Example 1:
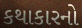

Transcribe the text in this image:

કથાકારનો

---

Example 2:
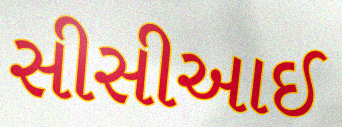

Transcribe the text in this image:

સીસીઆઈ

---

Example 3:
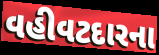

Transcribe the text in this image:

વહીવટદારના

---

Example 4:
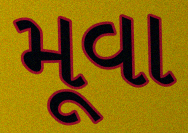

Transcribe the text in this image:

મૂવા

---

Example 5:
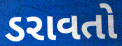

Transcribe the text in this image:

ડરાવતો